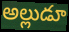
అల్లుడూ